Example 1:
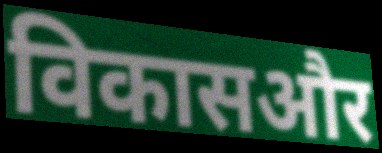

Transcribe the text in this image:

विकासऔर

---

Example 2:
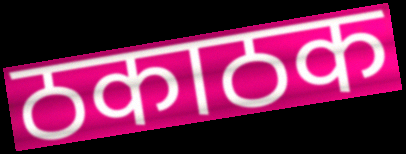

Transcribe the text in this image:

ठकाठक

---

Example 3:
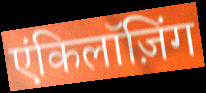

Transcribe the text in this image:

एंकिलॉज़िंग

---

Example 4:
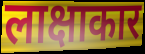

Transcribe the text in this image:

लाक्षाकार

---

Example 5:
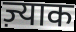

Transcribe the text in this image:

ज़्याक